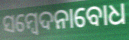
ସମ୍ବେଦନାବୋଧ